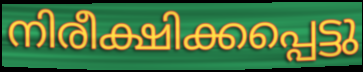
നിരീക്ഷിക്കപ്പെട്ടു